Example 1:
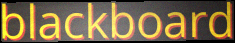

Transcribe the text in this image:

blackboard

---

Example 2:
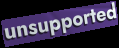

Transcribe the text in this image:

unsupported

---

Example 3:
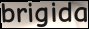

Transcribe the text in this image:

brigida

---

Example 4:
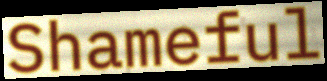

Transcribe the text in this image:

Shameful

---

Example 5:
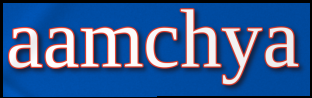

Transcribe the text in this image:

aamchya